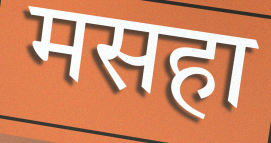
मसहा